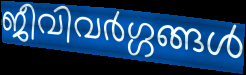
ജീവിവർഗ്ഗങ്ങൾ